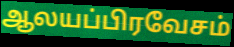
ஆலயப்பிரவேசம்